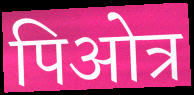
पिओत्र